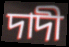
দাদী